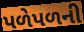
પળેપળની